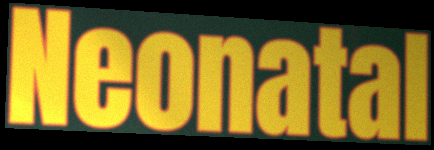
Neonatal